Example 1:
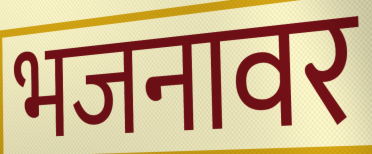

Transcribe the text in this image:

भजनावर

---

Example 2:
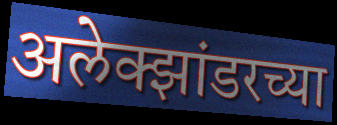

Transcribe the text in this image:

अलेक्झांडरच्या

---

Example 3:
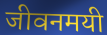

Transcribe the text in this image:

जीवनमयी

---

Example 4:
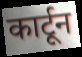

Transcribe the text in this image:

कार्टून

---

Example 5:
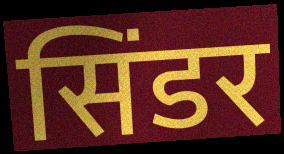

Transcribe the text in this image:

सिंडर